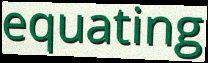
equating